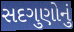
સદગુણોનું